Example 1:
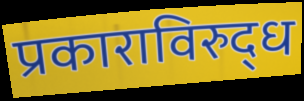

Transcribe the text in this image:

प्रकाराविरुद्ध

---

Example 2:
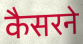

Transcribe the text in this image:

कैसरने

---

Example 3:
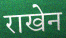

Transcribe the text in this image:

राखेन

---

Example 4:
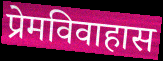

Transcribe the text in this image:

प्रेमविवाहास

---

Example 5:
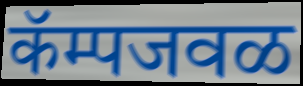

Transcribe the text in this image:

कॅम्पजवळ